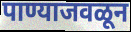
पाण्याजवळून